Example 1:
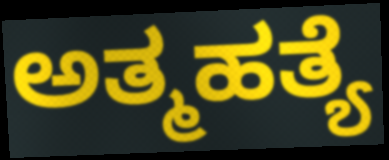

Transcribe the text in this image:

ಅತ್ಮಹತ್ಯೆ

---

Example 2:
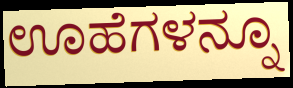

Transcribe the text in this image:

ಊಹೆಗಳನ್ನೂ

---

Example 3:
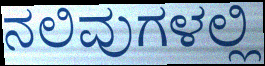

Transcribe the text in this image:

ನಲಿವುಗಳಲ್ಲಿ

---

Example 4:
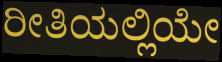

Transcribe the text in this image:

ರೀತಿಯಲ್ಲಿಯೇ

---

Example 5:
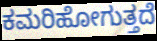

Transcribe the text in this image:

ಕಮರಿಹೋಗುತ್ತದೆ